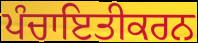
ਪੰਚਾਇਤੀਕਰਨ